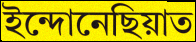
ইন্দোনেছিয়াত